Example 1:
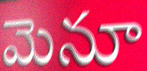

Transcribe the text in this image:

మెనూ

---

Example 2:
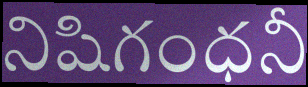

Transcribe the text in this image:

నిషిగంధనీ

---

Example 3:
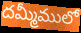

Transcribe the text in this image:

దమ్మీములో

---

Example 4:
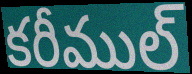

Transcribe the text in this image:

కరీముల్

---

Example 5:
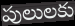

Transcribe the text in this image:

పులులకు